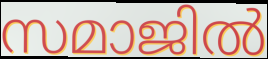
സമാജിൽ